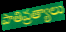
పాతివ్రత్యాలు